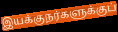
இயக்குநர்களுக்குப்